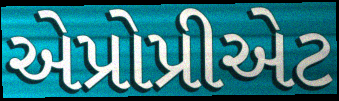
એપ્રોપ્રીએટ